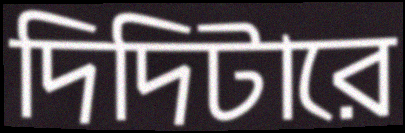
দিদিটারে